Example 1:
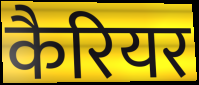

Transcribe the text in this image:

कैरियर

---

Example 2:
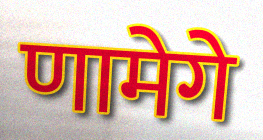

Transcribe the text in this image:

णामेगे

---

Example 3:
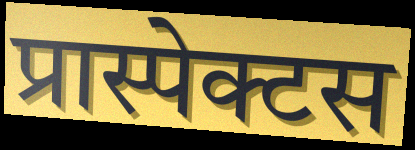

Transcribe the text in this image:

प्रास्पेक्टस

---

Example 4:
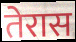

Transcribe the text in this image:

तेरास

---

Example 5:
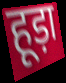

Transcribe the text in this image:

हूड़ा